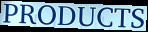
PRODUCTS